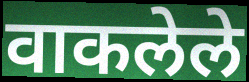
वाकलेले